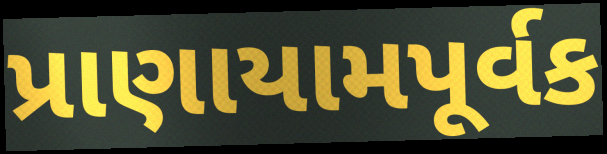
પ્રાણાયામપૂર્વક